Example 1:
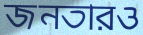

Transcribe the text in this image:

জনতারও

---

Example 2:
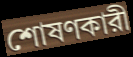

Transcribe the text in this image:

শোষণকারী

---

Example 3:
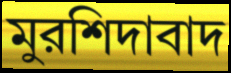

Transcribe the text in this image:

মুরশিদাবাদ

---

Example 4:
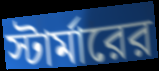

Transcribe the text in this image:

স্টার্মারের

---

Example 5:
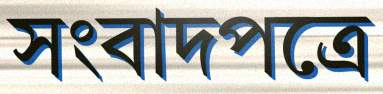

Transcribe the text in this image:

সংবাদপত্রে